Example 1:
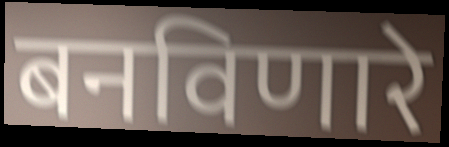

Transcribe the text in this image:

बनविणारे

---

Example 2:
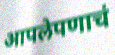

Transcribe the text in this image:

आपलेपणाचं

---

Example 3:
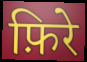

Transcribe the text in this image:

फ़िरे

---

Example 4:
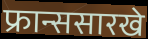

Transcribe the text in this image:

फ्रान्ससारखे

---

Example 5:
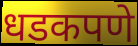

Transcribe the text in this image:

धडकपणे